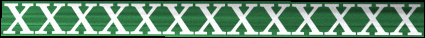
xxxxxxxxxxxxx